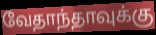
வேதாந்தாவுக்கு